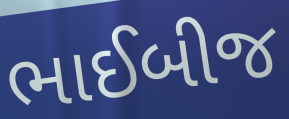
ભાઈબીજ